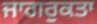
ਜਾਗਰੁਕਤਾ